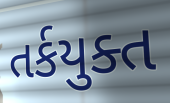
તર્કયુક્ત